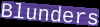
Blunders